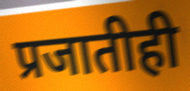
प्रजातीही